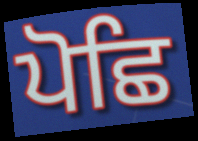
ਪੋਛਿ